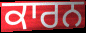
ਕਾਰਨ